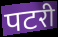
पटरी